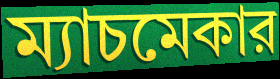
ম্যাচমেকার